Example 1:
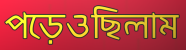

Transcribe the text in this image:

পড়েওছিলাম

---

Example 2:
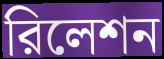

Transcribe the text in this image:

রিলেশন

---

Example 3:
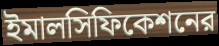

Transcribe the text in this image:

ইমালসিফিকেশনের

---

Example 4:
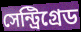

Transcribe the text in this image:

সেন্ট্রিগ্রেড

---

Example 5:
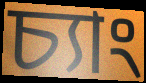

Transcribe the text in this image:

চ্যাং